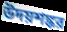
উদয়শঙ্কর